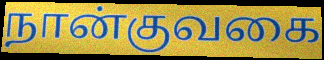
நான்குவகை